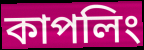
কাপলিং